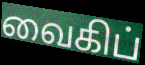
வைகிப்